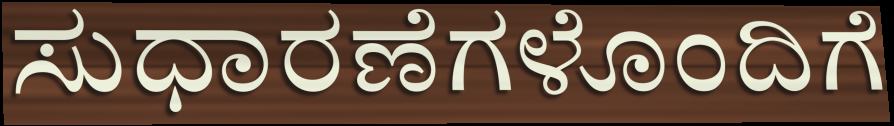
ಸುಧಾರಣೆಗಳೊಂದಿಗೆ